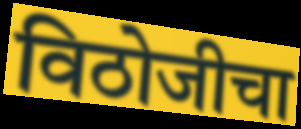
विठोजीचा